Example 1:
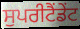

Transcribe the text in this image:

ਸੁਪਰੀਟੈਂਡੇਂਟ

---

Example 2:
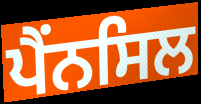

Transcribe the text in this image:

ਪੈਂਨਸਿਲ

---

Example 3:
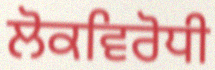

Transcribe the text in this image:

ਲੋਕਵਿਰੋਧੀ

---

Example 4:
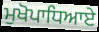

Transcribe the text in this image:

ਮੁਖੋਪਾਧਿਆਏ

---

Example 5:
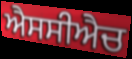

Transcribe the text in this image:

ਐਸਸੀਐਚ